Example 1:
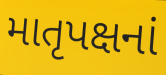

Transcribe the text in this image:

માતૃપક્ષનાં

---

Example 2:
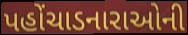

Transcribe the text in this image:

પહોંચાડનારાઓની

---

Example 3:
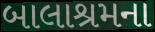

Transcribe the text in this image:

બાલાશ્રમના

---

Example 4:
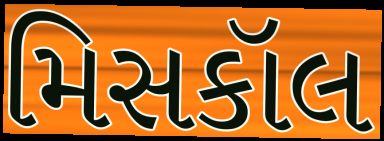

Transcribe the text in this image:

મિસકૉલ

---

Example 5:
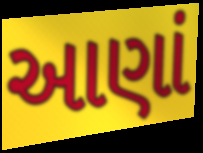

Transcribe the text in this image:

આણાં